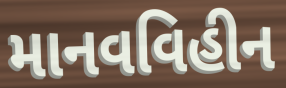
માનવવિહીન